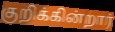
குறிக்கின்றார்